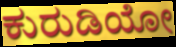
ಕುರುಡಿಯೋ